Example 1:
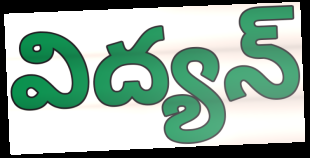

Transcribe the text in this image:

విద్యన్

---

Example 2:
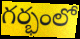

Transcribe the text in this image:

గర్భంలో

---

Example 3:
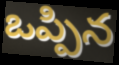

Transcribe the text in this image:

ఒప్పిన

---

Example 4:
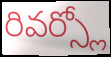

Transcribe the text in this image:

రివర్స్లో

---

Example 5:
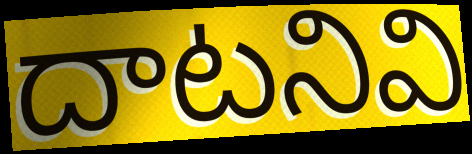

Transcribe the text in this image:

దాటనివి